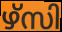
ഴ്സി